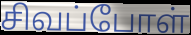
சிவப்போள்